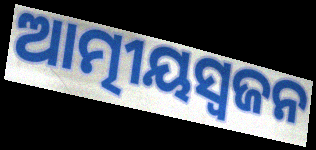
ଆତ୍ମୀୟସ୍ୱଜନ